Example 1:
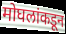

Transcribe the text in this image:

मोघलांकडून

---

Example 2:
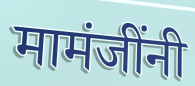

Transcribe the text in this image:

मामंजींनी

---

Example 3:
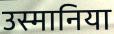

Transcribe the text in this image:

उस्मानिया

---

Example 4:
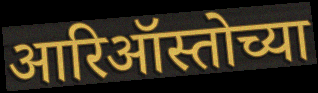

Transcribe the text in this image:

आरिऑस्तोच्या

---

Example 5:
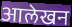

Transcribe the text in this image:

आलेखन